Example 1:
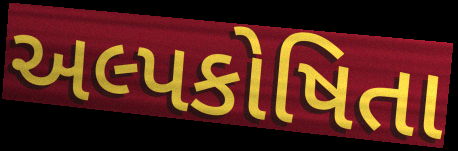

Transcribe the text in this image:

અલ્પકોષિતા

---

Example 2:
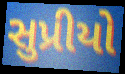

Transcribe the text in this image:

સુપ્રીયો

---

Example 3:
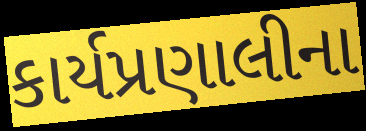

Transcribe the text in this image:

કાર્યપ્રણાલીના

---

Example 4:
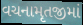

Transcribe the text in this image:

વચનામૃતજીમાં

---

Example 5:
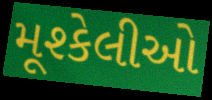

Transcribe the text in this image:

મૂશ્કેલીઓ